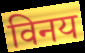
विनय